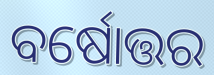
ବର୍ଷୋତ୍ତର